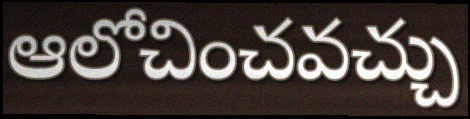
ఆలోచించవచ్చు